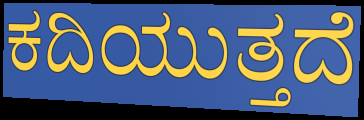
ಕದಿಯುತ್ತದೆ